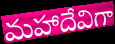
మహాదేవిగా